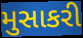
મુસાકરી